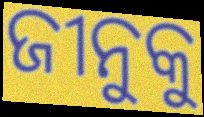
ଜୀନୁକୁ